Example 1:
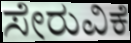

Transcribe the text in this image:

ಸೇರುವಿಕೆ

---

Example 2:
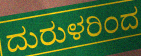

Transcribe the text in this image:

ದುರುಳರಿಂದ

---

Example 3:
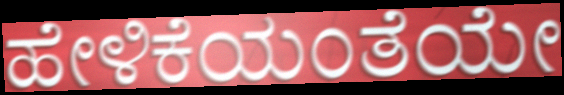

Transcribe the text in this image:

ಹೇಳಿಕೆಯಂತೆಯೇ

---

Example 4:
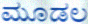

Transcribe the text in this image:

ಮೂಡಲ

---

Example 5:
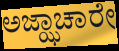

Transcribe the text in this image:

ಅಜ್ಝಾಚಾರೇ